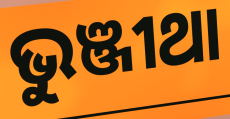
ଭୁଞ୍ଜୀଥା